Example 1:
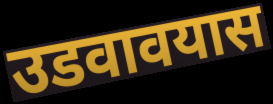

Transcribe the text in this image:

उडवावयास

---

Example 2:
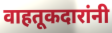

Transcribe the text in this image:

वाहतूकदारांनी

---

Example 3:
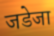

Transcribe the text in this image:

जडेजा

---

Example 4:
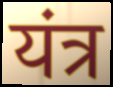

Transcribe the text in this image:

यंत्र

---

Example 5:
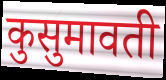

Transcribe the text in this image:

कुसुमावती